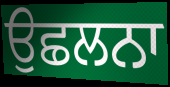
ਉਛਲਨਾ